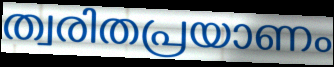
ത്വരിതപ്രയാണം